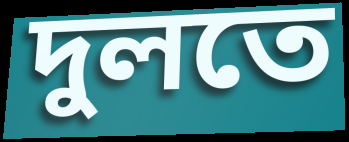
দুলতে